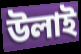
উলাই